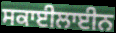
ਸਕਾਈਲਾਈਨ